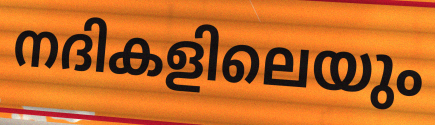
നദികളിലെയും